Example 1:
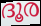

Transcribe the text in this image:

ദൂര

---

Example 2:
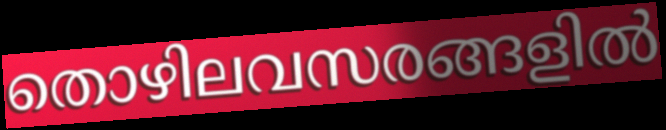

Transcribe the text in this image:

തൊഴിലവസരങ്ങളിൽ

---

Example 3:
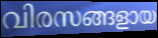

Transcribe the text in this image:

വിരസങ്ങളായ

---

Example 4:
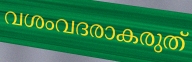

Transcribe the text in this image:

വശംവദരാകരുത്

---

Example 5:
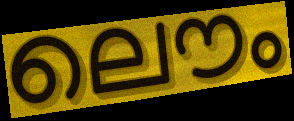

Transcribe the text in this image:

ലൌം